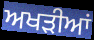
ਅਖੜੀਆਂ